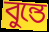
বুন্তে